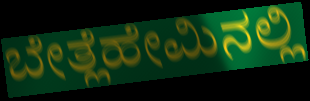
ಬೇತ್ಲೆಹೇಮಿನಲ್ಲಿ